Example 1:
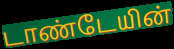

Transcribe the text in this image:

டாண்டேயின்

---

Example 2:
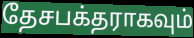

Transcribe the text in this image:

தேசபக்தராகவும்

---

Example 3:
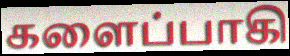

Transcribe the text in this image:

களைப்பாகி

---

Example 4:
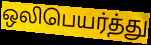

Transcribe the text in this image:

ஒலிபெயர்த்து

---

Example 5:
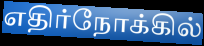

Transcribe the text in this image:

எதிர்நோக்கில்